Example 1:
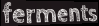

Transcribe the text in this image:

ferments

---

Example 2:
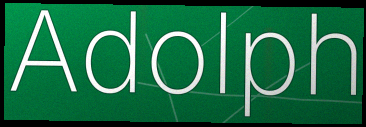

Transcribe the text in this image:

Adolph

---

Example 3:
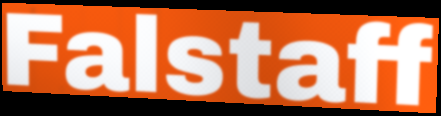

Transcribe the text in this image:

Falstaff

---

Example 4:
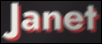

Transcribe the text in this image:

Janet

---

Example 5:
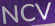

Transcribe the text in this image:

NCV